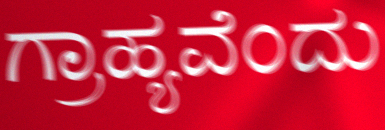
ಗ್ರಾಹ್ಯವೆಂದು